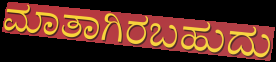
ಮಾತಾಗಿರಬಹುದು